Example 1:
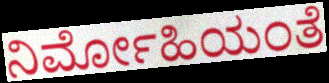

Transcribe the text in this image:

ನಿರ್ಮೋಹಿಯಂತೆ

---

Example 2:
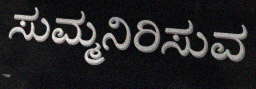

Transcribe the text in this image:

ಸುಮ್ಮನಿರಿಸುವ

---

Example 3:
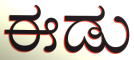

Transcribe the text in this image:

ಈಡು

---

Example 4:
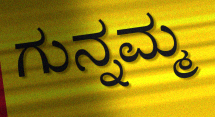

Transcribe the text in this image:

ಗುನ್ನಮ್ಮ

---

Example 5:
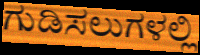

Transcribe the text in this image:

ಗುಡಿಸಲುಗಳಲ್ಲಿ